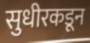
सुधीरकडून